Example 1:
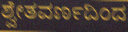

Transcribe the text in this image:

ಶ್ವೇತವರ್ಣದಿಂದ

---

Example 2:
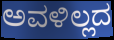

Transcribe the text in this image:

ಅವಳಿಲ್ಲದ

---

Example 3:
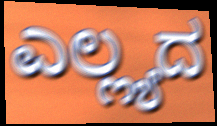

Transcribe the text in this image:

ಎಲ್ಲ್ಯದ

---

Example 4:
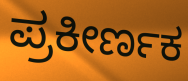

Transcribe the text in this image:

ಪ್ರಕೀರ್ಣಕ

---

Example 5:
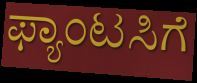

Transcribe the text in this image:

ಫ್ಯಾಂಟಸಿಗೆ